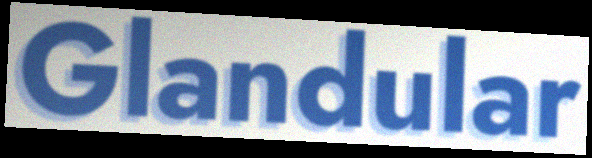
Glandular